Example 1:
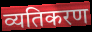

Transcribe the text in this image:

व्यतिकरण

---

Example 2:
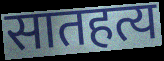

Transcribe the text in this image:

सातहत्य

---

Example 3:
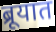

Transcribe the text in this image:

ब्रूयात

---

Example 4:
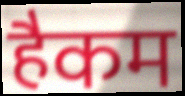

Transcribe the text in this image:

हैकम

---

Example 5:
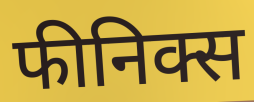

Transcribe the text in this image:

फीनिक्स